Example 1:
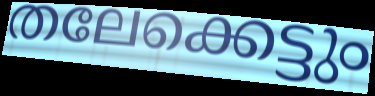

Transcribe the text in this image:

തലേക്കെട്ടും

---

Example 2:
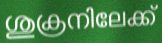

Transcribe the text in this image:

ശുക്രനിലേക്ക്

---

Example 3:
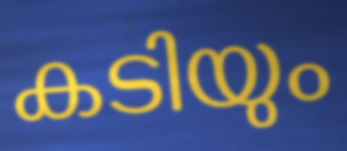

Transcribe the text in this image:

കടിയും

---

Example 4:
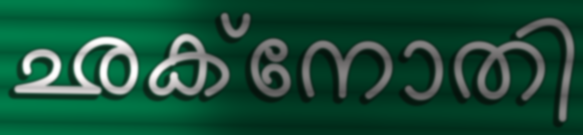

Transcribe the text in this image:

ഛക്നോതി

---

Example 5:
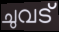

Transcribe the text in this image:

ചുവട്